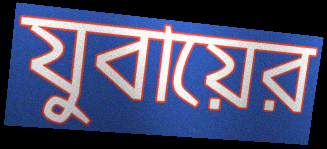
যুবায়ের